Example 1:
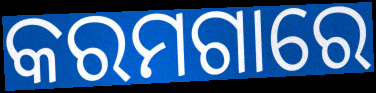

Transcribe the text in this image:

କରମଗାରେ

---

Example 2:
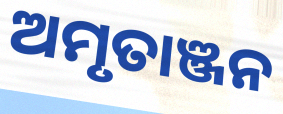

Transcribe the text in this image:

ଅମୃତାଞ୍ଜନ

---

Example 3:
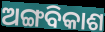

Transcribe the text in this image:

ଅଙ୍ଗବିକାଶ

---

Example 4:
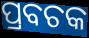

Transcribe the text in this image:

ପ୍ରବଚକ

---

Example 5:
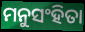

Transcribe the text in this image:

ମନୁସଂହିତା